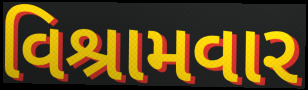
વિશ્રામવાર